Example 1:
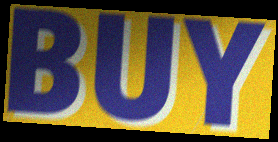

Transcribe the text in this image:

BUY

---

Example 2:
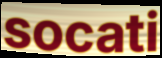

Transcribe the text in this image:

socati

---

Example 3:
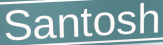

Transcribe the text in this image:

Santosh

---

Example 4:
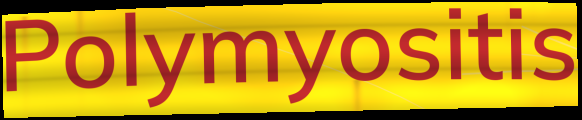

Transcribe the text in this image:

Polymyositis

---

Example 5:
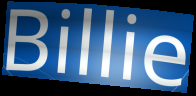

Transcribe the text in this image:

Billie